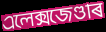
এলেক্সজেণ্ডাৰ